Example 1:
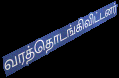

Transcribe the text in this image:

வரத்தொடங்கிவிட்டனர்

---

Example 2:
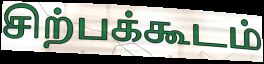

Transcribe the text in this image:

சிற்பக்கூடம்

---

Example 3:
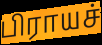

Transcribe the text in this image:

பிராயச்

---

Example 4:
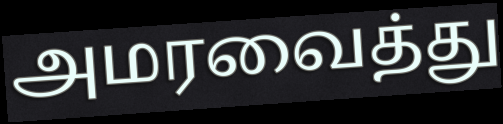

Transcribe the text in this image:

அமரவைத்து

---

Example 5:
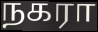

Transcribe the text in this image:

நகரா